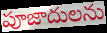
పూజాదులను